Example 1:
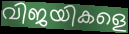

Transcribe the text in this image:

വിജയികളെ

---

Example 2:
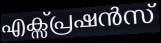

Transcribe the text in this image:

എക്സ്പ്രഷൻസ്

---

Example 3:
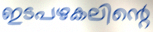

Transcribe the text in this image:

ഇടപഴകലിന്റെ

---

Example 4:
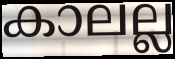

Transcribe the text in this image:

കാലല്ല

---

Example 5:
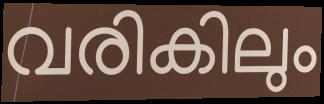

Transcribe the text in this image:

വരികിലും